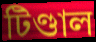
টিণ্ডাল